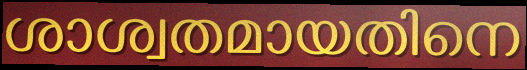
ശാശ്വതമായതിനെ